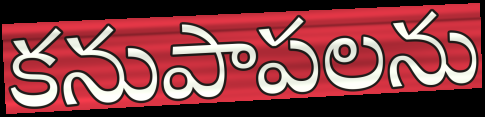
కనుపాపలను